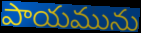
పాయమును